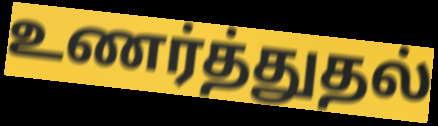
உணர்த்துதல்